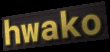
hwako